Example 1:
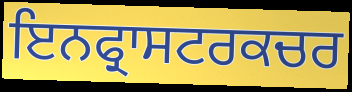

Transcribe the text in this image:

ਇਨਫ੍ਰਾਸਟਰਕਚਰ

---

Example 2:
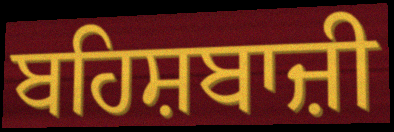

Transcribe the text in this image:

ਬਹਿਸ਼ਬਾਜ਼ੀ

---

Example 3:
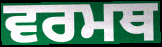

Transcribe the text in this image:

ਵਰਮਥ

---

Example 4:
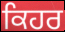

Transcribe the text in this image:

ਕਿਹਰ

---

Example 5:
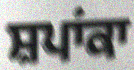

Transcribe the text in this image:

ਸ਼ਪਾਂਕਾ